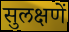
सुलक्षणें